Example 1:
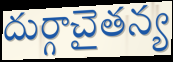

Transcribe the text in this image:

దుర్గాచైతన్య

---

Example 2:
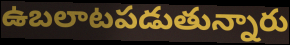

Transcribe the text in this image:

ఉబలాటపడుతున్నారు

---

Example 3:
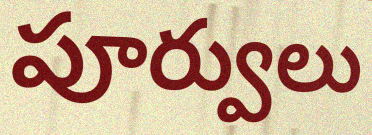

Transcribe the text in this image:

పూర్వులు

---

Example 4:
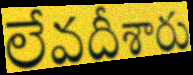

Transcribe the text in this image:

లేవదీశారు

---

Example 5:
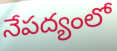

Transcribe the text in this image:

నేపద్యంలో